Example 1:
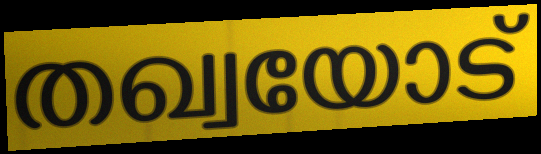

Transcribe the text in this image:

തഖ്വയോട്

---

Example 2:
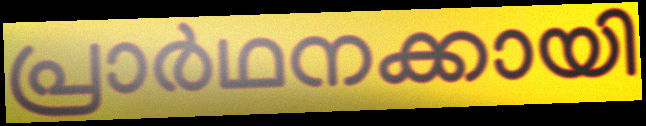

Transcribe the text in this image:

പ്രാർഥനക്കായി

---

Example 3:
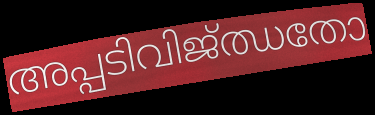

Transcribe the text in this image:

അപ്പടിവിജ്ഝതോ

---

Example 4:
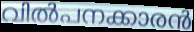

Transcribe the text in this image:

വിൽപനക്കാരൻ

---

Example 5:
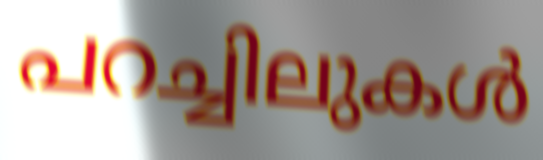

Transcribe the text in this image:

പറച്ചിലുകൾ